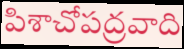
పిశాచోపద్రవాది